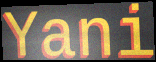
Yani